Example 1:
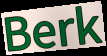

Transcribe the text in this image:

Berk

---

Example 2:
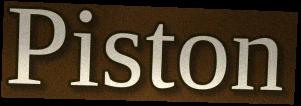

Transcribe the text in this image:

Piston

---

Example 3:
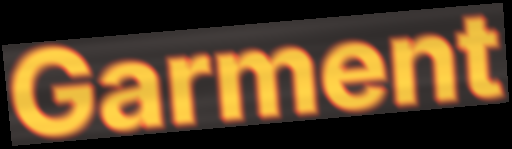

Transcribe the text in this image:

Garment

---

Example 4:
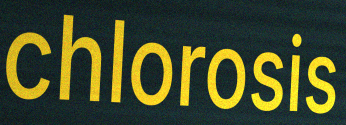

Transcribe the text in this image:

chlorosis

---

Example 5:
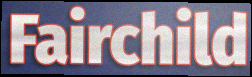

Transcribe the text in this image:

Fairchild